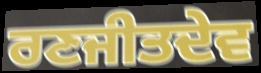
ਰਣਜੀਤਦੇਵ